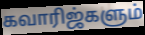
கவாரிஜ்களும்